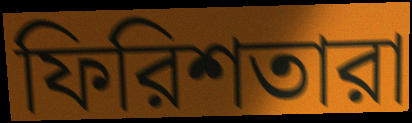
ফিরিশতারা